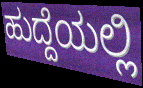
ಹುದ್ದೆಯಲ್ಲಿ